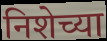
निशेच्या